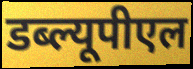
डब्ल्यूपीएल